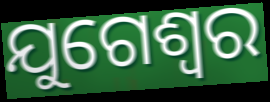
ଯୁଗେଶ୍ଵର